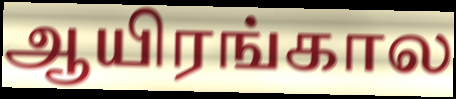
ஆயிரங்கால